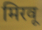
मिरवू